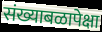
संख्याबळापेक्षा